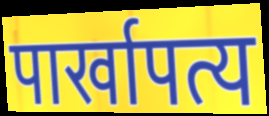
पार्खापत्य